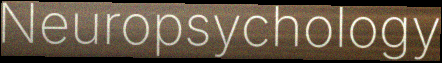
Neuropsychology